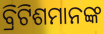
ବ୍ରିଟିଶମାନଙ୍କ